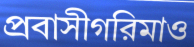
প্রবাসীগরিমাও